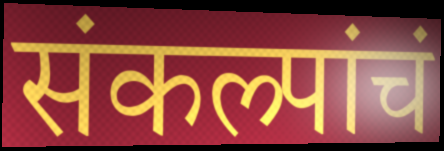
संकल्पांचं